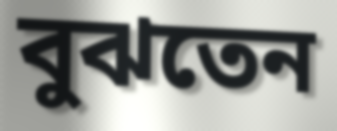
বুঝতেন